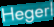
Hegerl